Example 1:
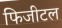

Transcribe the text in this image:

फिजीटल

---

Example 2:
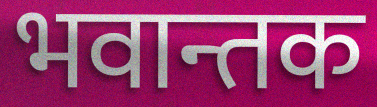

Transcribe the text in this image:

भवान्तक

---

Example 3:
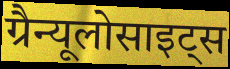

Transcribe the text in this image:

ग्रैन्यूलोसाइट्स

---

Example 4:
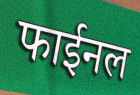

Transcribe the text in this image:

फाईनल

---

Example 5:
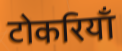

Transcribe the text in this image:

टोकरियाँ